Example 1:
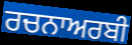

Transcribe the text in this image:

ਰਚਨਾਅਰਬੀ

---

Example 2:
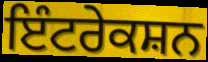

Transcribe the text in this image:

ਇੰਟਰੇਕਸ਼ਨ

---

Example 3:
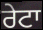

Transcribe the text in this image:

ਰੇਟਾ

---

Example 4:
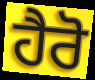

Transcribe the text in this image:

ਹੈਰੋ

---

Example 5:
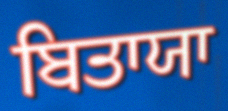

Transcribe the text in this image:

ਬਿਤਾਯਾ